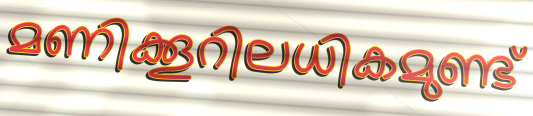
മണിക്കൂറിലധികമുണ്ട്